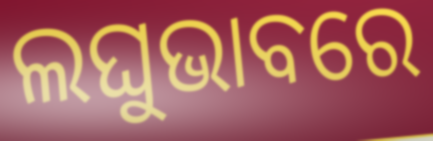
ଲଘୁଭାବରେ